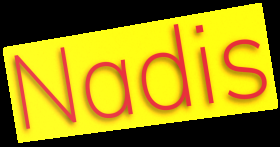
Nadis